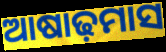
ଆଷାଢ଼ମାସ